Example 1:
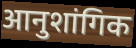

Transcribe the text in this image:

आनुशांगिक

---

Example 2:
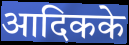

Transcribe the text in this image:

आदिकके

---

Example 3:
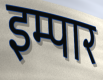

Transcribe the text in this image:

इम्पार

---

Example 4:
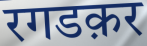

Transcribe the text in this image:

रगडक़र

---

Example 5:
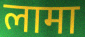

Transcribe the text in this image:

लामा